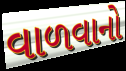
વાળવાનો